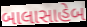
બાલાસાહેબ